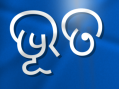
ଭୂତ